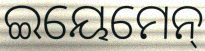
ଇୟେମେନ୍